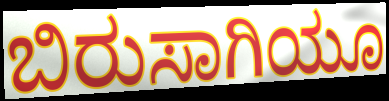
ಬಿರುಸಾಗಿಯೂ